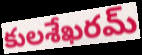
కులశేఖరమ్